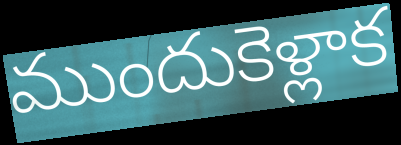
ముందుకెళ్లాక